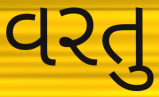
વરતુ